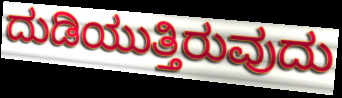
ದುಡಿಯುತ್ತಿರುವುದು